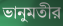
ভানুমতীর